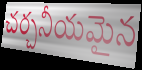
చర్చనీయమైన